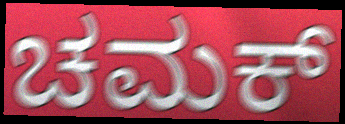
ಚಮಕ್